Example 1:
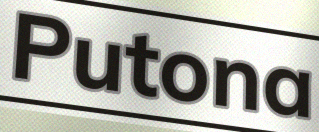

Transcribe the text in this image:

Putona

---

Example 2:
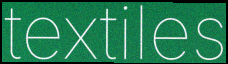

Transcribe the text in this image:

textiles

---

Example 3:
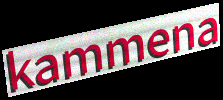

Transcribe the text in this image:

kammena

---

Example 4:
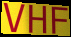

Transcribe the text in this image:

VHF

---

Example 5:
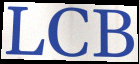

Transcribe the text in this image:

LCB